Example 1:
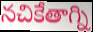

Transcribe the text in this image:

నచికేతాగ్ని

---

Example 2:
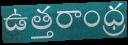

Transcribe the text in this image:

ఉత్తరాంధ్ర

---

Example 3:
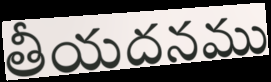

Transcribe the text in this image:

తీయదనము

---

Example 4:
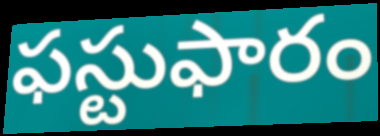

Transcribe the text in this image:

ఫస్టుఫారం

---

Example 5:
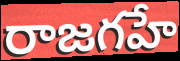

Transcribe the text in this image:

రాజగహే